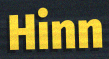
Hinn